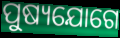
ପୁଷ୍ୟଯୋଗେ